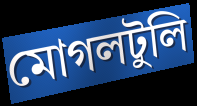
মোগলটুলি